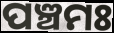
ପଞ୍ଚମଃ